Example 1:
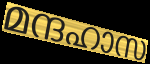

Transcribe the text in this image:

മന്ദഹാസ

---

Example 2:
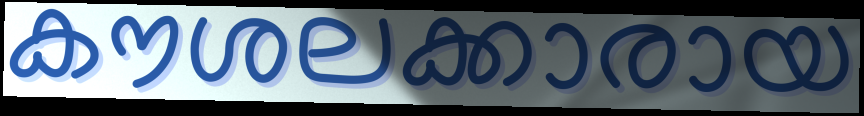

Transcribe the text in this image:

കൗശലക്കാരായ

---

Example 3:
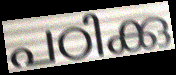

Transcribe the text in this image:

പഠിക്കു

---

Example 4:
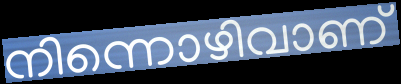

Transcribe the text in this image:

നിന്നൊഴിവാണ്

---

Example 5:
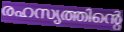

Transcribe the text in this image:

രഹസ്യത്തിന്റെ